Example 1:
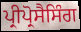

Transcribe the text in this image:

ਪ੍ਰੀਪ੍ਰੋਸੈਸਿੰਗ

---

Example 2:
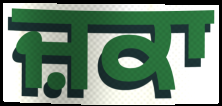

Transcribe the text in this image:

ਜ਼ਕਾ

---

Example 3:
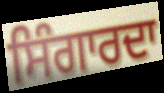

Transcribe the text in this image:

ਸਿੰਗਾਰਦਾ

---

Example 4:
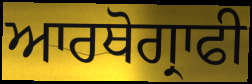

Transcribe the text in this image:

ਆਰਥੋਗ੍ਰਾਫੀ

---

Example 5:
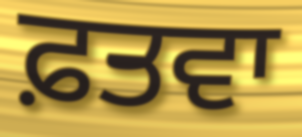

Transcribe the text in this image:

ਫ਼ਤਵਾ